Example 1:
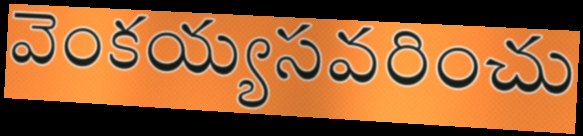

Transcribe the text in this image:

వెంకయ్యసవరించు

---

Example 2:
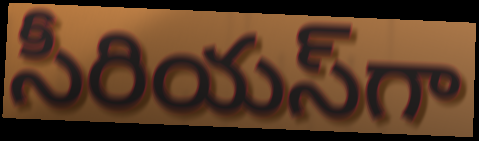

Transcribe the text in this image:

సీరియస్‌గా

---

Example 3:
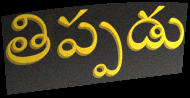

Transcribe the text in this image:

తిప్పడు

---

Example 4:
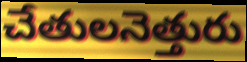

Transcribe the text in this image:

చేతులనెత్తురు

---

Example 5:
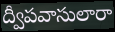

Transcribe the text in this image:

ద్వీపవాసులారా